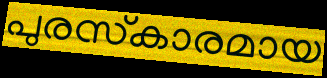
പുരസ്‌കാരമായ